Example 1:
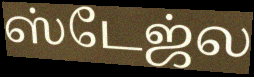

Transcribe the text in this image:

ஸ்டேஜ்ல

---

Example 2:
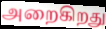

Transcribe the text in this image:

அறைகிறது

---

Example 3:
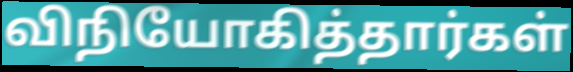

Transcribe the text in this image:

விநியோகித்தார்கள்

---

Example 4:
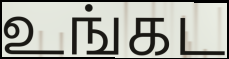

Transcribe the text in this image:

உங்கட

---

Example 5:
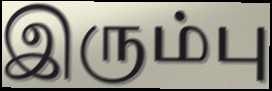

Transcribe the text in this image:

இரும்பு